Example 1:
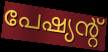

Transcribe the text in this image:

പേഷ്യന്റ്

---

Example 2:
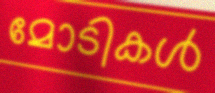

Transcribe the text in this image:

മോടികൾ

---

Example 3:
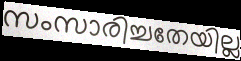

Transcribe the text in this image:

സംസാരിച്ചതേയില്ല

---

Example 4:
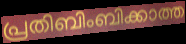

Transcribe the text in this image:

പ്രതിബിംബിക്കാത്ത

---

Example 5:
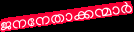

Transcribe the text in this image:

ജനനേതാക്കന്മാർ